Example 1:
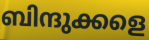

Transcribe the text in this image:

ബിന്ദുക്കളെ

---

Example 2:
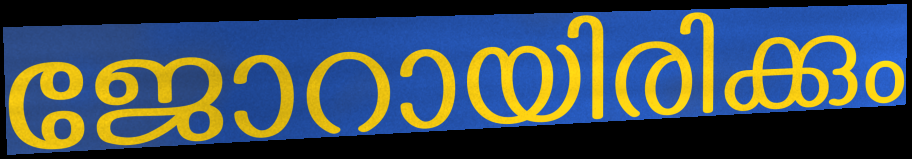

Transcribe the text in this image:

ജോറായിരിക്കും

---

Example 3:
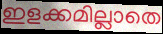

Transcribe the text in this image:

ഇളക്കമില്ലാതെ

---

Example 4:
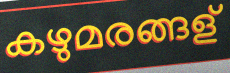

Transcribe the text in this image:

കഴുമരങ്ങള്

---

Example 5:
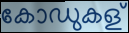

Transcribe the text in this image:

കോഡുകള്